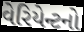
વેરિયેન્ટનો